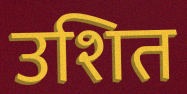
उशित